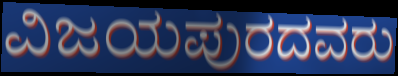
ವಿಜಯಪುರದವರು